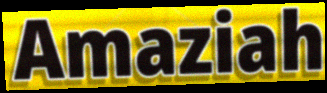
Amaziah